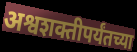
अश्वशक्तीपर्यंतच्या